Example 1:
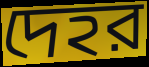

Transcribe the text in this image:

দেহর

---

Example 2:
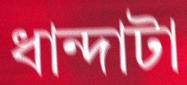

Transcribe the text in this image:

ধান্দাটা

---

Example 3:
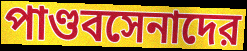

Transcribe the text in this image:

পাণ্ডবসেনাদের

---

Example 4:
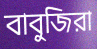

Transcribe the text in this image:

বাবুজিরা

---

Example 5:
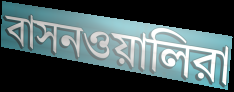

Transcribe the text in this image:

বাসনওয়ালিরা